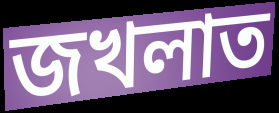
জখলাত